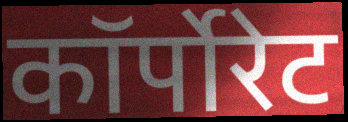
कॉर्पोरेट